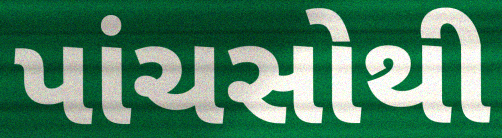
પાંચસોથી